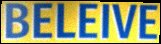
BELEIVE